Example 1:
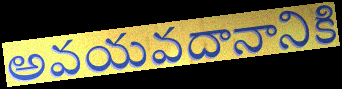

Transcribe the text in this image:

అవయవదానానికి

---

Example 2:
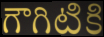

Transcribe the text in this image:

గౌగిటికి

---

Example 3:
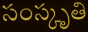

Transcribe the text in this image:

సంస్కృతి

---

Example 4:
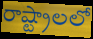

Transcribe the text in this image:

రాష్ట్రాలలో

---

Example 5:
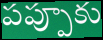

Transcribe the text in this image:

పప్పూకు